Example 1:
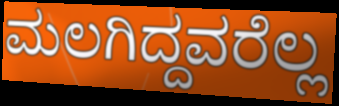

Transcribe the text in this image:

ಮಲಗಿದ್ದವರೆಲ್ಲ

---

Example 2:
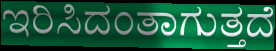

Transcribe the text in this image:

ಇರಿಸಿದಂತಾಗುತ್ತದೆ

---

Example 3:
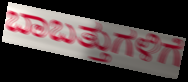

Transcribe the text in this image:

ಬಾಬತ್ತುಗಳಿಗೆ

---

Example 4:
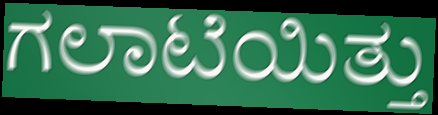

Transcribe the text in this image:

ಗಲಾಟೆಯಿತ್ತು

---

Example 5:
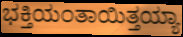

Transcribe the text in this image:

ಭಕ್ತಿಯಂತಾಯಿತ್ತಯ್ಯಾ